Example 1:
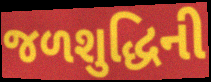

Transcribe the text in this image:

જળશુદ્ધિની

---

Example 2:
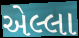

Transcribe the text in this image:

એલ્લા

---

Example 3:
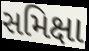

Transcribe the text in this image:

સમિક્ષા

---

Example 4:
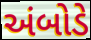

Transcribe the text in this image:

અંબોડે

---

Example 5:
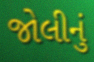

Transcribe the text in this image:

જોલીનું